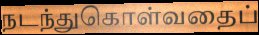
நடந்துகொள்வதைப்